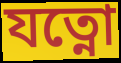
যত্নো